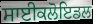
ਸਾਈਕਲੋਇਡਲ